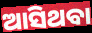
ଆସିଥବା